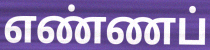
எண்ணப்